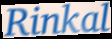
Rinkal